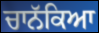
ਚਾਨੱਕਿਆ